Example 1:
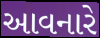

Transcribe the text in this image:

આવનારે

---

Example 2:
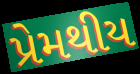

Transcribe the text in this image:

પ્રેમથીય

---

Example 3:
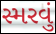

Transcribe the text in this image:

સ્મરવું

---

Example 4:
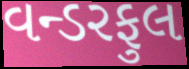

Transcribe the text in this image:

વન્ડરફુલ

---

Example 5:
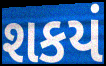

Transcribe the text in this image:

શકયં